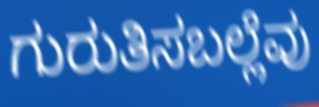
ಗುರುತಿಸಬಲ್ಲೆವು